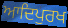
ਆਦਿਪੁਰਖ